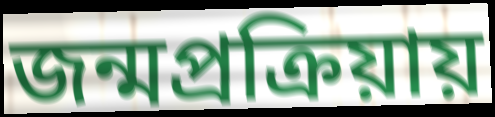
জন্মপ্রক্রিয়ায়